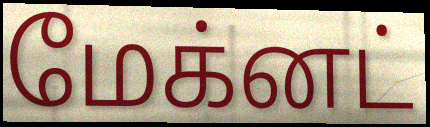
மேக்னட்